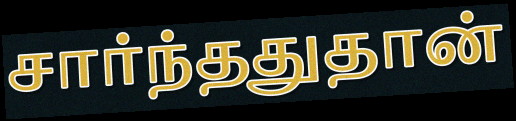
சார்ந்ததுதான்